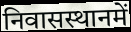
निवासस्थानमें